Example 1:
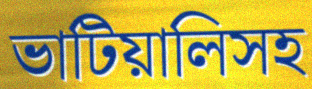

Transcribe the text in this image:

ভাটিয়ালিসহ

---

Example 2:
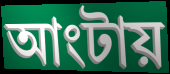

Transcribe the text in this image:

আংটায়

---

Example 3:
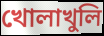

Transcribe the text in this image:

খোলাখুলি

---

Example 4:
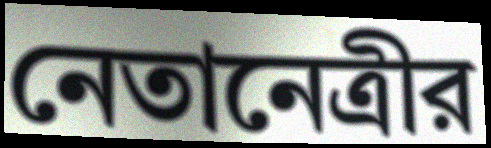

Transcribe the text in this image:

নেতানেত্রীর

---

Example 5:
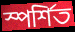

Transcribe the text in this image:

স্পর্শিত